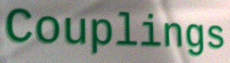
Couplings